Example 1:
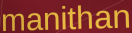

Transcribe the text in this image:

manithan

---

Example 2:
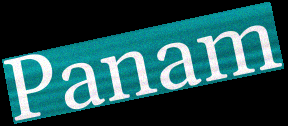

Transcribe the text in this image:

Panam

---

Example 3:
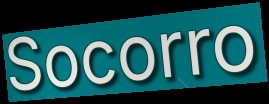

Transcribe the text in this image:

Socorro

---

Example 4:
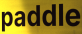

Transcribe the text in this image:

paddle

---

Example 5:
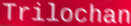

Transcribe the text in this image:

Trilochan